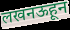
लखनऊहून